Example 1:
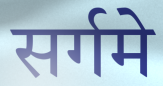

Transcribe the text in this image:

सर्गमे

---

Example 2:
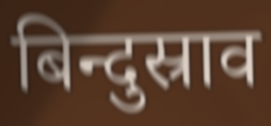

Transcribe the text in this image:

बिन्दुस्राव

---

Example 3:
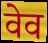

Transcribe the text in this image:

वेव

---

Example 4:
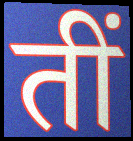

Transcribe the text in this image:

तीं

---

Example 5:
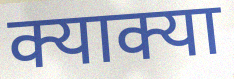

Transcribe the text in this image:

क्याक्या